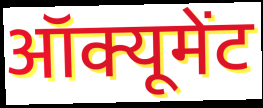
ऑक्यूमेंट